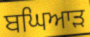
ਬਘਿਆੜ